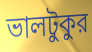
ভালটুকুর